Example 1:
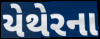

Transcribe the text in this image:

યેથેરના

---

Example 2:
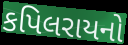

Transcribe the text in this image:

કપિલરાયનો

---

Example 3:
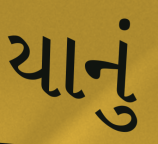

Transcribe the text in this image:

યાનું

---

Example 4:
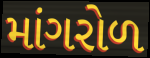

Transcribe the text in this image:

માંગરોળ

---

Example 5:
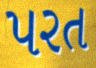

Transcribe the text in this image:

પરત